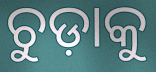
ଚୁଡ଼ାକୁ